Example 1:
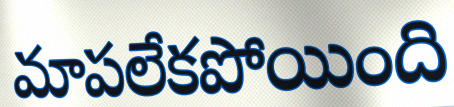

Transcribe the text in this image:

మాపలేకపోయింది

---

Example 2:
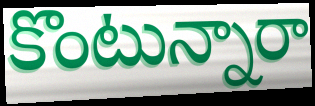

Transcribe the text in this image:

కొంటున్నారా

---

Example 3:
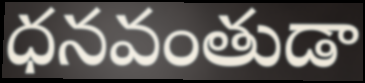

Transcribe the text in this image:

ధనవంతుడా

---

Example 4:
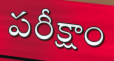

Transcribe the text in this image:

పరీక్షాం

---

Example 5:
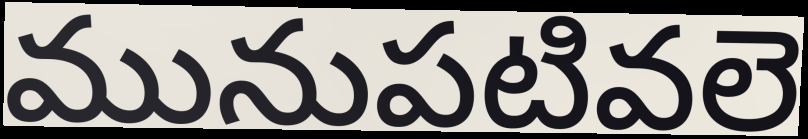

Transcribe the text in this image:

మునుపటివలె